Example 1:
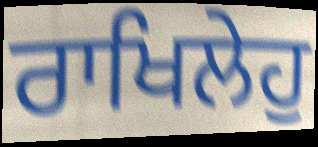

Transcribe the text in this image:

ਰਾਖਿਲੇਹੁ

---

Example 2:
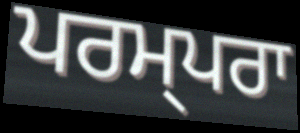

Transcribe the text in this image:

ਪਰਮ੍ਪਰਾ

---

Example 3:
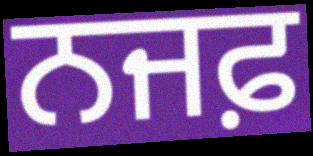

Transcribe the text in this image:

ਨਜਫ਼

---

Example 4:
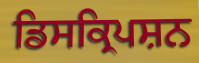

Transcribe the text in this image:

ਡਿਸਕ੍ਰਿਪਸ਼ਨ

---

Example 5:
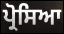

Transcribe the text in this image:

ਪ੍ਰੋਸਿਆ